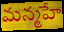
మన్మహే